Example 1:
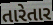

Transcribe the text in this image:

તારેતાર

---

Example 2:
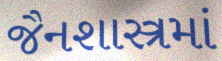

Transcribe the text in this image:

જૈનશાસ્ત્રમાં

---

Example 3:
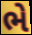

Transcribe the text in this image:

ભે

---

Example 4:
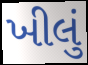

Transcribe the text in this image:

ખીલું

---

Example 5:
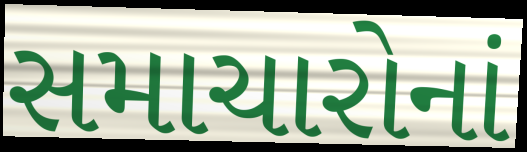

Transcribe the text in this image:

સમાચારોનાં